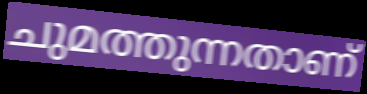
ചുമത്തുന്നതാണ്